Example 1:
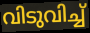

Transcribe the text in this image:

വിടുവിച്ച്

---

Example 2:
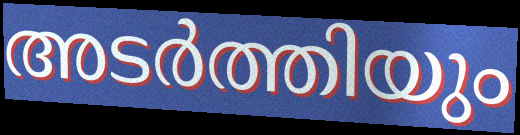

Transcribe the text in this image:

അടർത്തിയും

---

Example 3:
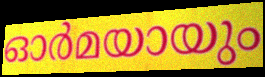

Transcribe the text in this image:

ഓർമയായും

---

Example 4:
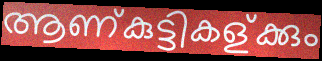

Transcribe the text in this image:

ആണ്കുട്ടികള്ക്കും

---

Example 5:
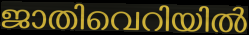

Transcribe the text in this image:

ജാതിവെറിയിൽ